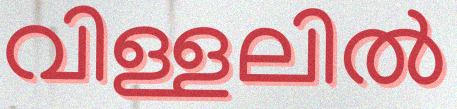
വിള്ളലിൽ